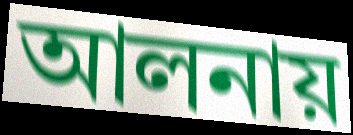
আলনায়